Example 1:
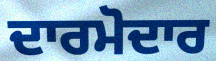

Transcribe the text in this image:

ਦਾਰਮੋਦਾਰ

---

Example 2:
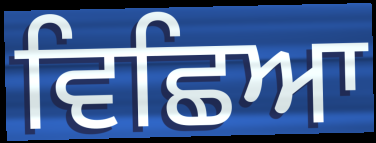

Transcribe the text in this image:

ਵਿਛਿਆ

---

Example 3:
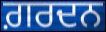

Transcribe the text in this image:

ਗ਼ਰਦਨ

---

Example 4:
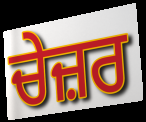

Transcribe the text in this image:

ਚੇਜ਼ਰ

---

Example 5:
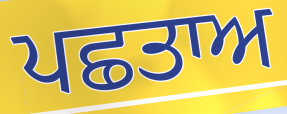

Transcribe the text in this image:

ਪਛਤਾਅ